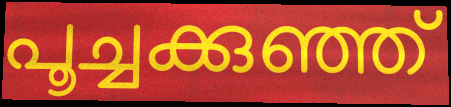
പൂച്ചക്കുഞ്ഞ്